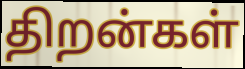
திறன்கள்